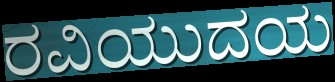
ರವಿಯುದಯ